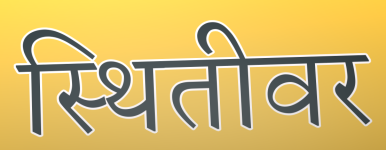
स्थितीवर